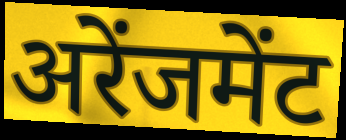
अरेंजमेंट